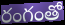
రంగంతో